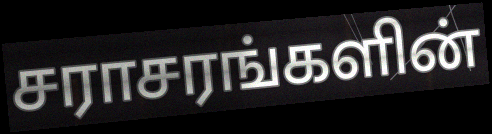
சராசரங்களின்